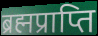
ब्रह्मप्राप्ति